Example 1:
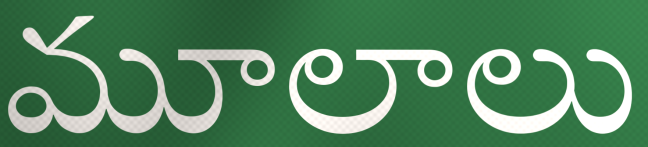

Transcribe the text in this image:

మూలాలు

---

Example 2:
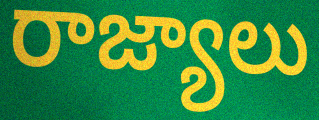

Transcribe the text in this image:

రాజ్యాలు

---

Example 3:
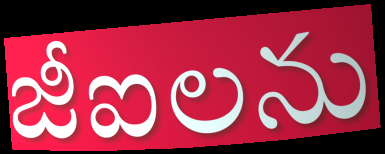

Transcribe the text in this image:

జీఐలను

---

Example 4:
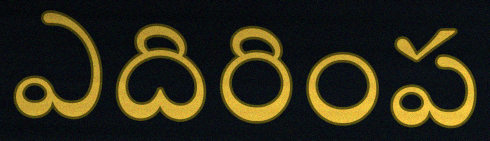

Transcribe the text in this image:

ఎదిరింప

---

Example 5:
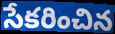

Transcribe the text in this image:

సేకరించిన